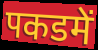
पकडमें